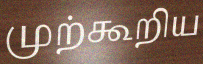
முற்கூறிய